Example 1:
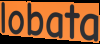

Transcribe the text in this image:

lobata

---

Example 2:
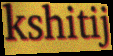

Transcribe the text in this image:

kshitij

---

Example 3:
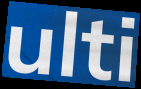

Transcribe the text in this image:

ulti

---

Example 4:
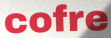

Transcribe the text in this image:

cofre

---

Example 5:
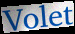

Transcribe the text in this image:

Volet